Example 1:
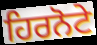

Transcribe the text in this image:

ਹਿਰਨੋਟੇ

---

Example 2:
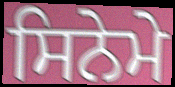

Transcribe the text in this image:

ਸਿਨੇਮੇ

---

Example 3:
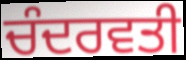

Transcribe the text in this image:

ਚੰਦਰਵਤੀ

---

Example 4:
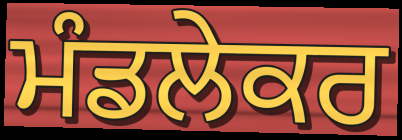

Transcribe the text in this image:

ਮੰਡਲੇਕਰ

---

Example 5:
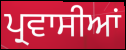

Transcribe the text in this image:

ਪ੍ਰਵਾਸੀਆਂ